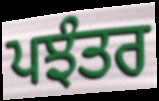
ਪਝੰਤਰ